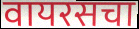
वायरसचा